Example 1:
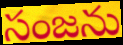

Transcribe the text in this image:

సంజను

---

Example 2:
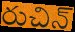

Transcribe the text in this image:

రుచిన్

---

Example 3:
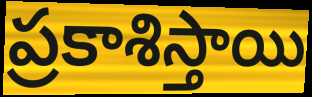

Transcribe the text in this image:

ప్రకాశిస్తాయి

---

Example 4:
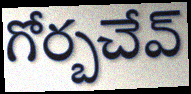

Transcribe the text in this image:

గోర్బచేవ్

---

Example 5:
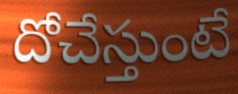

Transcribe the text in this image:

దోచేస్తుంటే